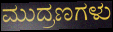
ಮುದ್ರಣಗಳು